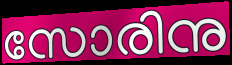
സോരിനു